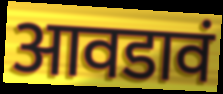
आवडावं